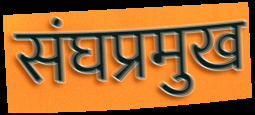
संघप्रमुख